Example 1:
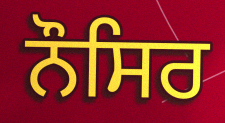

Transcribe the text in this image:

ਨੌਸਿਰ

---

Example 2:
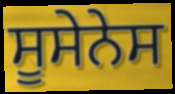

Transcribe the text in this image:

ਸੂਸੇਨੇਸ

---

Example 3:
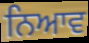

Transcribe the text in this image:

ਨਿਆਵ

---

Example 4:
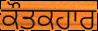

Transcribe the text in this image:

ਕੌਤਕਹਾਰ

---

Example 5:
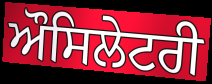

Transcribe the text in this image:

ਔਸਿਲੇਟਰੀ